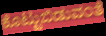
ಕೊಟ್ಟುಬಿಡುವಂತೆ